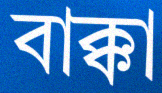
বাক্কা